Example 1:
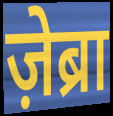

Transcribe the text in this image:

ज़ेब्रा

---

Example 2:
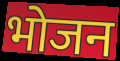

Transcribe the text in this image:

भोजन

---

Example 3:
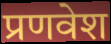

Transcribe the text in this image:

प्रणवेश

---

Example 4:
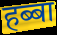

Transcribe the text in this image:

हब्‍बा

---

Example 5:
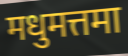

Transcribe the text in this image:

मधुमत्तमा